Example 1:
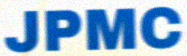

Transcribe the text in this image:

JPMC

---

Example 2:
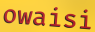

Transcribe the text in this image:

owaisi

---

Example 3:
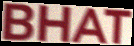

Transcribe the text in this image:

BHAT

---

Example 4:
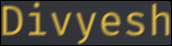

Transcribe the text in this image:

Divyesh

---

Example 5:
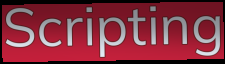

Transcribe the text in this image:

Scripting